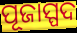
ପୂଜାସ୍ପଦ